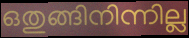
ഒതുങ്ങിനിന്നില്ല